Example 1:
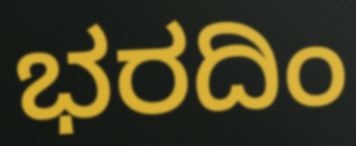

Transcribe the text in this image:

ಭರದಿಂ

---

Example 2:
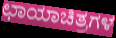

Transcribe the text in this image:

ಛಾಯಾಚಿತ್ರಗಳ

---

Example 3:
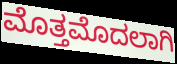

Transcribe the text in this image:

ಮೊತ್ತಮೊದಲಾಗಿ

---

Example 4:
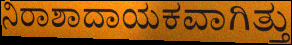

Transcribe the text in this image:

ನಿರಾಶಾದಾಯಕವಾಗಿತ್ತು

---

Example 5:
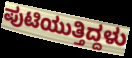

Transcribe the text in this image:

ಪುಟಿಯುತ್ತಿದ್ದಳು